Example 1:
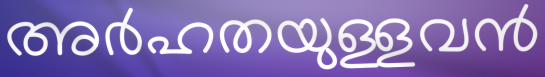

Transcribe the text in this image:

അർഹതയുള്ളവൻ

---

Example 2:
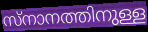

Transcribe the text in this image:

സ്നാനത്തിനുള്ള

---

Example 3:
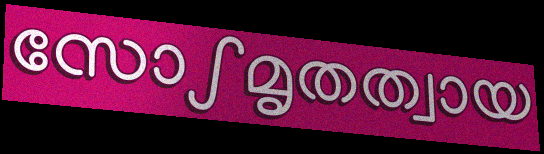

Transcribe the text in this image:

സോഽമൃതത്വായ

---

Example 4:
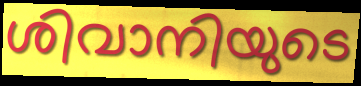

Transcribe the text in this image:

ശിവാനിയുടെ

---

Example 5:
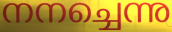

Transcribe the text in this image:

നനച്ചെന്നു